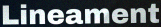
Lineament